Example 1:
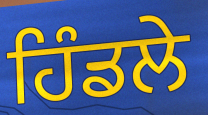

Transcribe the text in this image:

ਹਿੰਡਲੇ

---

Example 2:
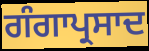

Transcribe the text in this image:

ਗੰਗਾਪ੍ਰਸਾਦ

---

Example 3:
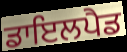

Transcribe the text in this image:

ਡਾਇਲਪੈਡ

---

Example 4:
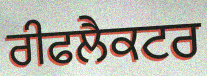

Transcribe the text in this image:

ਰੀਫਲੈਕਟਰ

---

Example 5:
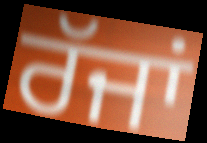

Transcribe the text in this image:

ਰੱਜਾਂ